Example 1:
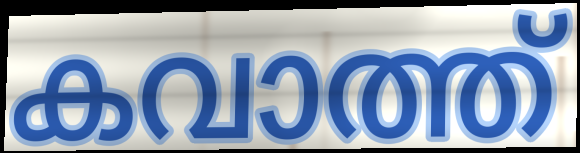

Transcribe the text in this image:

കവാത്ത്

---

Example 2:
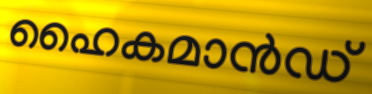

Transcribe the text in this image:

ഹൈകമാൻഡ്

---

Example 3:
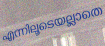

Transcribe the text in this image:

എന്നിലൂടെയല്ലാതെ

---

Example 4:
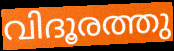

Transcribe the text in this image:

വിദൂരത്തു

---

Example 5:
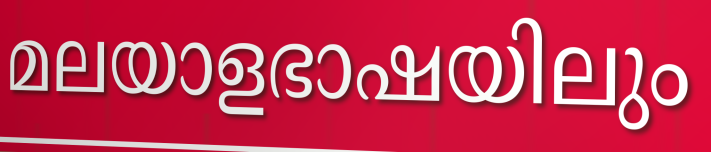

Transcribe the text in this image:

മലയാളഭാഷയിലും